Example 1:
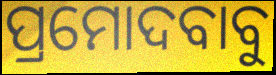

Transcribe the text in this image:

ପ୍ରମୋଦବାବୁ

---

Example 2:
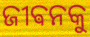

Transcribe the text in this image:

ଜୀଵନକୁ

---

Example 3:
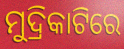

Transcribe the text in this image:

ମୁଦ୍ରିକାଟିରେ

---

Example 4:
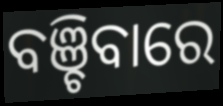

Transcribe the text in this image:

ବଞ୍ଚିବାରେ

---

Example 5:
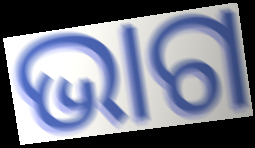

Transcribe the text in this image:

ଭାଗ